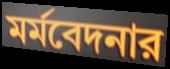
মর্মবেদনার